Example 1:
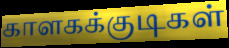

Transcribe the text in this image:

காளகக்குடிகள்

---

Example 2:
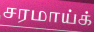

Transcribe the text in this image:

சரமாய்க்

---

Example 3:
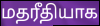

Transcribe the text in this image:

மதரீதியாக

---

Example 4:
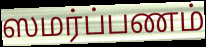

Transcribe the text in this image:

ஸமர்ப்பணம்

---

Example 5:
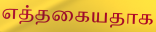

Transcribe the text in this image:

எத்தகையதாக